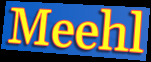
Meehl